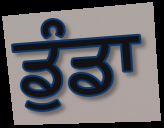
ਡੁੰਡਾ